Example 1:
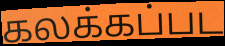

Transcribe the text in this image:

கலக்கப்பட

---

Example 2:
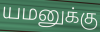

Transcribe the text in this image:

யமனுக்கு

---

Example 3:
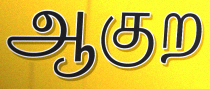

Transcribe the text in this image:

ஆகுற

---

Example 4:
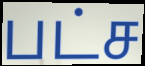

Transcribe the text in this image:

பட்ச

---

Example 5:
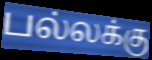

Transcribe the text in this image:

பல்லக்கு